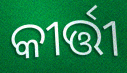
କୀର୍ତ୍ତୀ